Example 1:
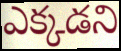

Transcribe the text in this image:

ఎక్కడని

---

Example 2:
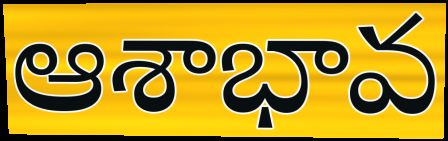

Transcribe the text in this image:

ఆశాభావ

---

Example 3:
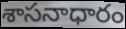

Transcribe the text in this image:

శాసనాధారం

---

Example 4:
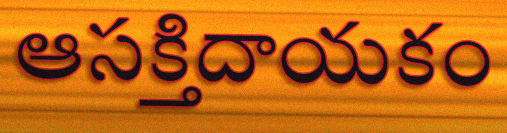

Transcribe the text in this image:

ఆసక్తిదాయకం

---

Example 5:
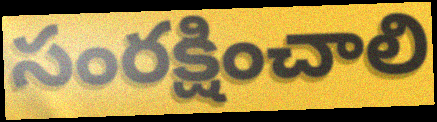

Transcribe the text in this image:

సంరక్షించాలి